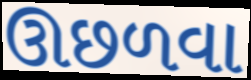
ઊછળવા